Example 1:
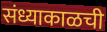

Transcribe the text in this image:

संध्याकाळची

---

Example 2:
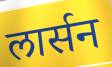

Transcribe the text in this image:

लार्सन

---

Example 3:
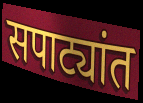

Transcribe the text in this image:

सपाट्यांत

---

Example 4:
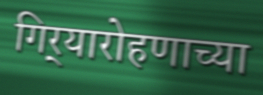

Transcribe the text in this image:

गिर्यारोहणाच्या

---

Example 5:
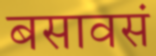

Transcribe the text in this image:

बसावसं